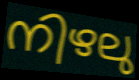
നിഴലു